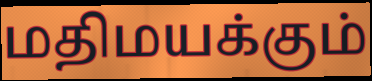
மதிமயக்கும்